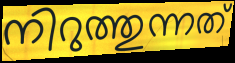
നിറുത്തുന്നത്